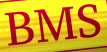
BMS